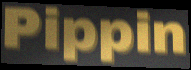
Pippin